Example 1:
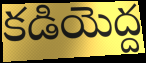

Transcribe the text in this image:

కడియెద్ద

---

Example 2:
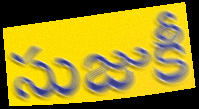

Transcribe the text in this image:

సుజుకీ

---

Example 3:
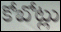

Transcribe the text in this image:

కోబోట్లు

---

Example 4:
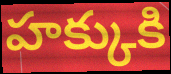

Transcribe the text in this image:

హక్కుకి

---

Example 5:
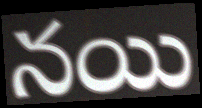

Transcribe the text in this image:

నయి